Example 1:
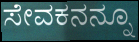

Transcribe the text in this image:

ಸೇವಕನನ್ನೂ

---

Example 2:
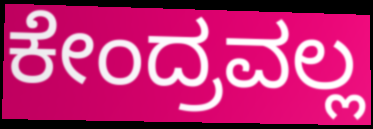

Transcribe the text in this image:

ಕೇಂದ್ರವಲ್ಲ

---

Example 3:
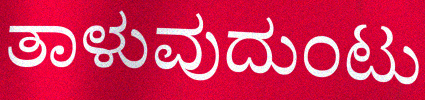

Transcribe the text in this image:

ತಾಳುವುದುಂಟು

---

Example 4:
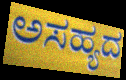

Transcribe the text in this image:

ಅಸಹ್ಯದ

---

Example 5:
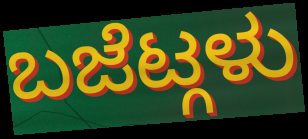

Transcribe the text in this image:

ಬಜೆಟ್ಗಳು